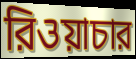
রিওয়াচার